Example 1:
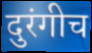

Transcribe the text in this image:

दुरंगीच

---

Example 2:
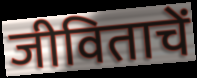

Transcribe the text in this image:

जीविताचें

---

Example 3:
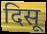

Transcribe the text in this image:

दिसू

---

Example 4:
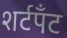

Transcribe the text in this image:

शर्टपॅंट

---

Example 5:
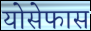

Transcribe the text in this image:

योसेफास